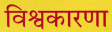
विश्वकारणा